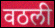
वठली